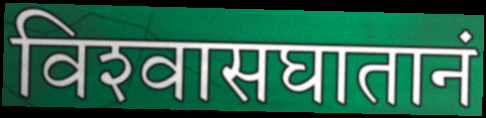
विश्वासघातानं